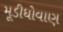
મૂડીધોવાણ